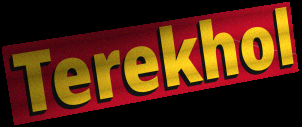
Terekhol